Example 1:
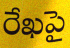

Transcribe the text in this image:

రేఖపై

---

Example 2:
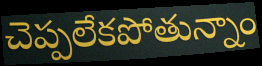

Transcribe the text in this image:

చెప్పలేకపోతున్నాం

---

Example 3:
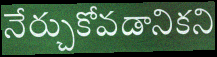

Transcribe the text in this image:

నేర్చుకోవడానికని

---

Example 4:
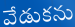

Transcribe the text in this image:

వేడుకను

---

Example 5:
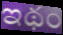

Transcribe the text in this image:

ఇథం